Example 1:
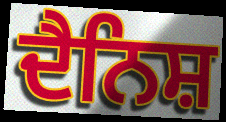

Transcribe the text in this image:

ਦੈਨਿਸ਼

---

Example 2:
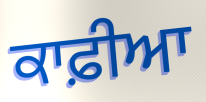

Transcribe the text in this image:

ਕਾਫ਼ੀਆ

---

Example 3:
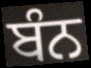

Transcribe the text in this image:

ਬੰਨ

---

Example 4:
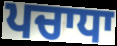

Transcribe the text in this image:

ਪਚਾਧਾ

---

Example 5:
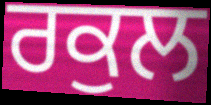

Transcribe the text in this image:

ਰਕੁਲ